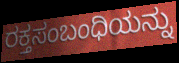
ರಕ್ತಸಂಬಂಧಿಯನ್ನು